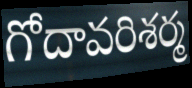
గోదావరిశర్మ